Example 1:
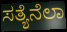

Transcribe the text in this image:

ಸತ್ಯೆನೆಲಾ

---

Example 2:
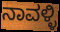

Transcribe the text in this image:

ನಾವಳ್ಳಿ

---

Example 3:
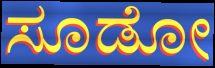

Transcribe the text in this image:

ಸೂಡೋ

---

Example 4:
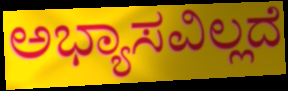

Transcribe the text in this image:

ಅಭ್ಯಾಸವಿಲ್ಲದೆ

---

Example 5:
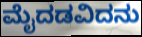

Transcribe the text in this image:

ಮೈದಡವಿದನು